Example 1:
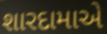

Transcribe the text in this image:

શારદામાએ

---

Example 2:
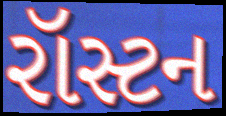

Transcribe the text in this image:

રૉસ્ટન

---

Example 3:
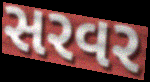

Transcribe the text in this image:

સરવર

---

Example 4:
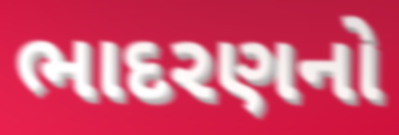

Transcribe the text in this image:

ભાદરણનો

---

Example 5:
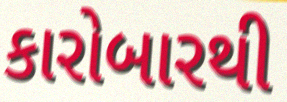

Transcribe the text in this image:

કારોબારથી